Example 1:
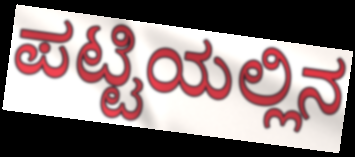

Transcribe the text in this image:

ಪಟ್ಟಿಯಲ್ಲಿನ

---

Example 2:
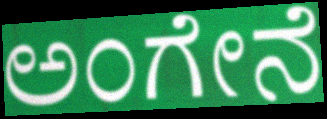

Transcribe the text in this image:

ಅಂಗೇನೆ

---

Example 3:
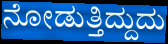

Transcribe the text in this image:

ನೋಡುತ್ತಿದ್ದುದು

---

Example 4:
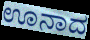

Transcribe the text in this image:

ಊನಾದ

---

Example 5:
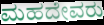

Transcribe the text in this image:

ಮಹದೇವರು